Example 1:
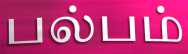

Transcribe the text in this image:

பல்பம்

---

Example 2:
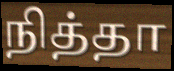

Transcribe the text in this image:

நித்தா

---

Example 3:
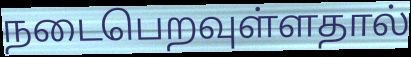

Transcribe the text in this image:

நடைபெறவுள்ளதால்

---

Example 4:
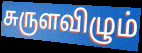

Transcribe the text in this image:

சுருளவிழும்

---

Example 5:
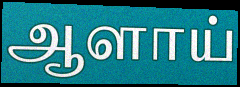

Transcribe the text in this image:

ஆளாய்